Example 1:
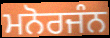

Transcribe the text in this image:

ਮਨੋਰਜੰਨ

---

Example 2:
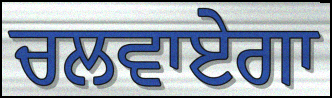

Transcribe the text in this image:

ਚਲਵਾਏਗਾ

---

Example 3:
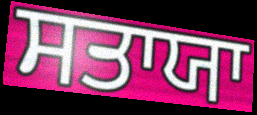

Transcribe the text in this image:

ਸਤਾਯਾ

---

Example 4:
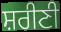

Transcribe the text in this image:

ਸ਼ਰੀਣੀ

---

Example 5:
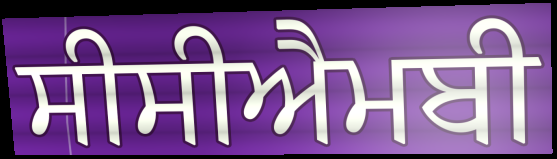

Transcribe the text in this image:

ਸੀਸੀਐਮਬੀ